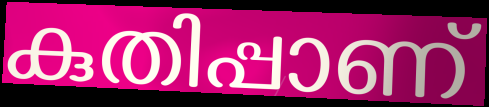
കുതിപ്പാണ്